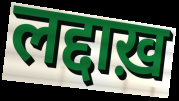
लद्दाख़